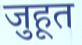
जुहूत